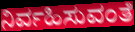
ನಿರ್ವಹಿಸುವಂತೆ